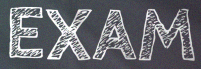
EXAM